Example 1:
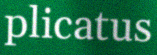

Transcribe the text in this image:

plicatus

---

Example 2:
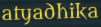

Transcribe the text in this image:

atyadhika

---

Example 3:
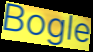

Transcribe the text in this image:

Bogle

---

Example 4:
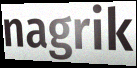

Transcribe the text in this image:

nagrik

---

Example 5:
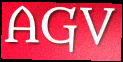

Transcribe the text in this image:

AGV